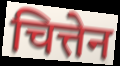
चित्तेन